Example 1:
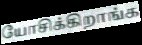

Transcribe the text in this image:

யோசிக்கிறாங்க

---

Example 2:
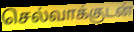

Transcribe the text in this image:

செல்வாக்குடன்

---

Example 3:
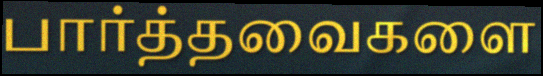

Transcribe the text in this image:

பார்த்தவைகளை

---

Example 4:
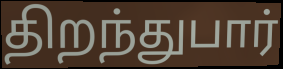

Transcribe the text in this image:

திறந்துபார்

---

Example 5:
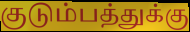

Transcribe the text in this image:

குடும்பத்துக்கு